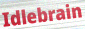
Idlebrain